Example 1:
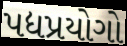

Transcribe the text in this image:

પદ્યપ્રયોગો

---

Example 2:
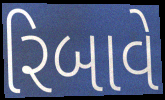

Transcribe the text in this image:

રિબાવે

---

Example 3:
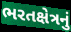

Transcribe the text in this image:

ભરતક્ષેત્રનું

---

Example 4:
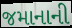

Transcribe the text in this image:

જમાનાની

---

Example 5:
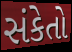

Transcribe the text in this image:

સંકેતો